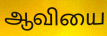
ஆவியை